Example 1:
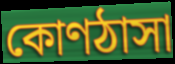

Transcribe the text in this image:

কোণঠাসা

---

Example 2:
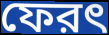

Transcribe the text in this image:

ফেরৎ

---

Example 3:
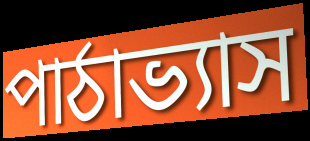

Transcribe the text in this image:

পাঠাভ্যাস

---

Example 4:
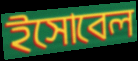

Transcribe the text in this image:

ইসোবেল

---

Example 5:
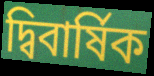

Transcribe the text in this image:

দ্বিবার্ষিক